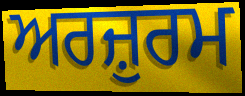
ਅਰਜ਼ੁਰਮ